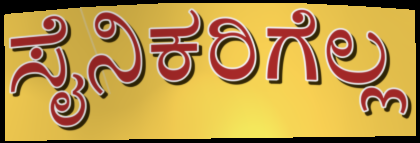
ಸೈನಿಕರಿಗೆಲ್ಲ